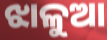
ଝାଳୁଆ